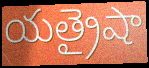
యత్రైషా